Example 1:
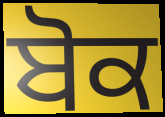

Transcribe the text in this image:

ਬੋਕ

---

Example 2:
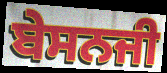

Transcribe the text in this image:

ਬੇਸਨਜੀ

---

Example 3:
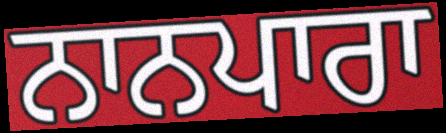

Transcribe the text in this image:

ਨਾਨਪਾਰਾ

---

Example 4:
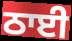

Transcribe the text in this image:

ਠਾਈ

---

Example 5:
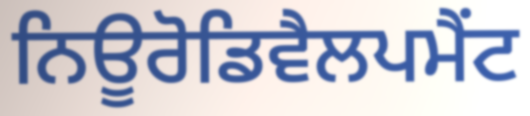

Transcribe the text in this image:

ਨਿਊਰੋਡਿਵੈਲਪਮੈਂਟ